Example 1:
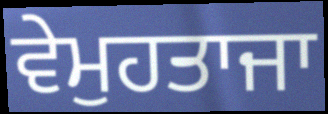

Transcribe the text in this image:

ਵੇਮੁਹਤਾਜਾ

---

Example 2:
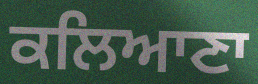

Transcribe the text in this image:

ਕਲਿਆਣਾ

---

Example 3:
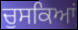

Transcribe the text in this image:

ਚੁਸਕਿਆਂ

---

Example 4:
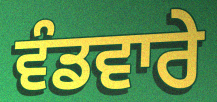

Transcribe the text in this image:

ਵੰਡਵਾਰੇ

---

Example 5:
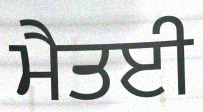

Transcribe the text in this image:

ਮੈਤਈ